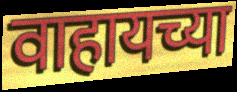
वाहायच्या